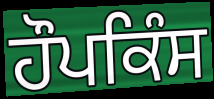
ਹੌਪਕਿੰਸ